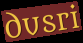
dusri